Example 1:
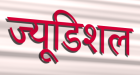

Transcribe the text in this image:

ज्यूडिशल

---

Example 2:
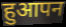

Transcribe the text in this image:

हुआपन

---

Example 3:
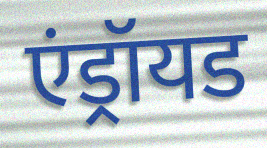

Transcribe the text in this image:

एंड्रॉयड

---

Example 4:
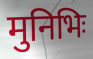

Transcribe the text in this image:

मुनिभिः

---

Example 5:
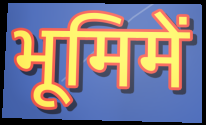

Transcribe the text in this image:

भूमिमें